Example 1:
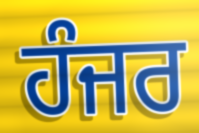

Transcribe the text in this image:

ਹੰਜਰ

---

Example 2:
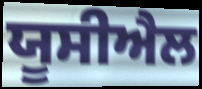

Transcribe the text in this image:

ਯੂਸੀਐਲ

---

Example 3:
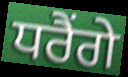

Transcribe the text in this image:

ਧਰੈਂਗੇ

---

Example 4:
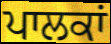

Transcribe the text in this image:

ਪਾਲਕਾਂ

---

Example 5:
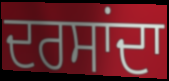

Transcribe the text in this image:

ਦਰਸਾਂਦਾ